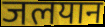
जलयान